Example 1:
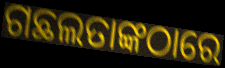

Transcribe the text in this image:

ଗଛଲତାଙ୍କଠାରେ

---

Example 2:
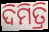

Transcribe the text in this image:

ଦିମିତ୍ରି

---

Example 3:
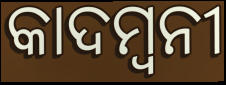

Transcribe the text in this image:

କାଦମ୍ୱନୀ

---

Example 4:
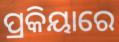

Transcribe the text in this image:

ପ୍ରକିୟାରେ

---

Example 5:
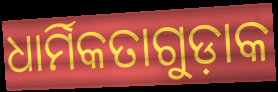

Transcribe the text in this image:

ଧାର୍ମିକତାଗୁଡ଼ାକ